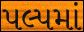
પલ્પમાં